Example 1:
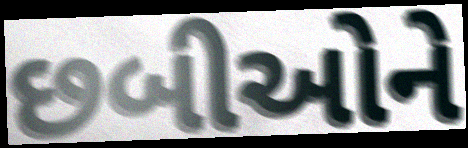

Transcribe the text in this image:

છબીઓને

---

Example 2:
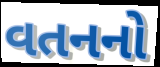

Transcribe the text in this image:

વતનનો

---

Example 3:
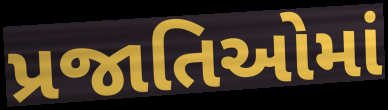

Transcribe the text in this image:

પ્રજાતિઓમાં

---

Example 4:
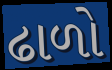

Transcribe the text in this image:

ઢાળો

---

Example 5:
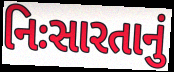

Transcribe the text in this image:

નિઃસારતાનું